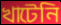
খাটেনি